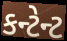
કન્ટેન્ટ